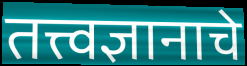
तत्त्वज्ञानाचे